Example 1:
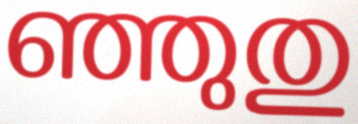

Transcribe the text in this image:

ഞ്ഞുതു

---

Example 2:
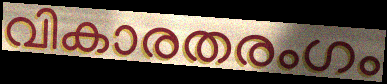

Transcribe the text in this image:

വികാരതരംഗം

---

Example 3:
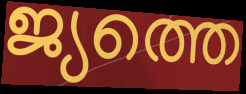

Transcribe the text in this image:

ജ്യത്തെ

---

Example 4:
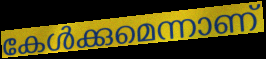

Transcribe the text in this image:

കേൾക്കുമെന്നാണ്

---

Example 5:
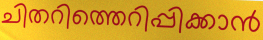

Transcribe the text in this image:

ചിതറിത്തെറിപ്പിക്കാൻ